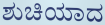
ಶುಚಿಯಾದ